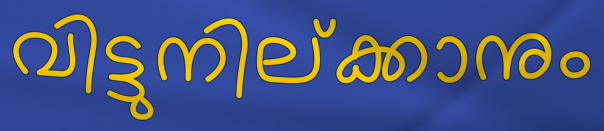
വിട്ടുനില്ക്കാനും